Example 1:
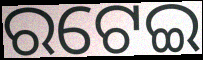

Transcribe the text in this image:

ରଟେଇ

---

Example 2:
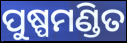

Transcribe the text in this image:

ପୁଷ୍ପମଣ୍ଡିତ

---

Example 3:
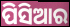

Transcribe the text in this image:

ପିସିଆର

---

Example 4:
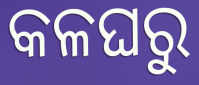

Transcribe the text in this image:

କଳଘରୁ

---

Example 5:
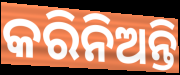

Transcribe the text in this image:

କରିନିଅନ୍ତି